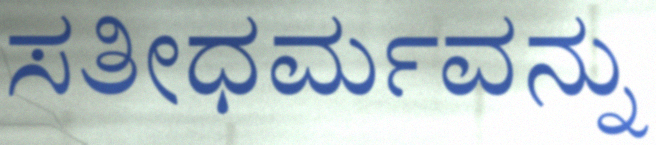
ಸತೀಧರ್ಮವನ್ನು